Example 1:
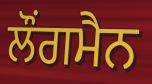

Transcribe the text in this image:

ਲੌਂਗਮੈਨ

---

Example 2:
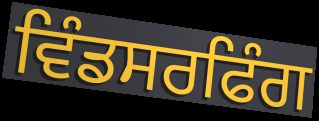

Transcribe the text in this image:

ਵਿੰਡਸਰਫਿੰਗ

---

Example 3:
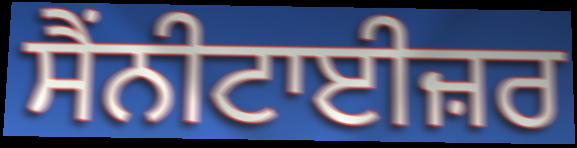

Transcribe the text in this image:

ਸੈਂਨੀਟਾਈਜ਼ਰ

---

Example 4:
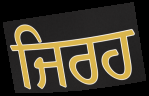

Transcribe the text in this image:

ਜਿਰਹ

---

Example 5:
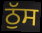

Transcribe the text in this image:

ਠੁੱਸ